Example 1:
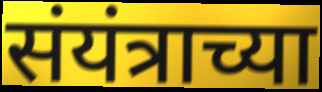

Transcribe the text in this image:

संयंत्राच्या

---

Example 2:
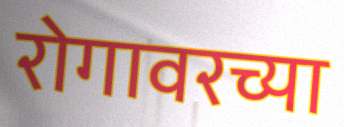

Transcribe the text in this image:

रोगावरच्या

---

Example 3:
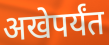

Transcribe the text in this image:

अखेपर्यंत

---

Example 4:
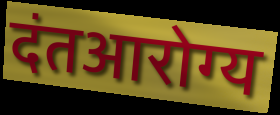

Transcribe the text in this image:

दंतआरोग्य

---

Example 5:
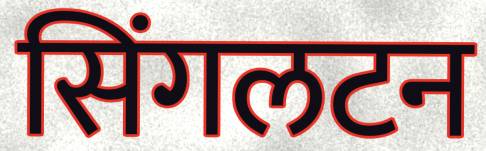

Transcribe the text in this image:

सिंगलटन